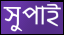
সুপাই